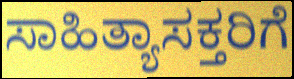
ಸಾಹಿತ್ಯಾಸಕ್ತರಿಗೆ